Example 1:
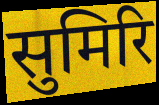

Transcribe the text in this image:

सुमिरि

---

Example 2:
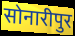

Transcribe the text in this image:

सोनारीपुर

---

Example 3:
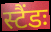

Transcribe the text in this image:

स्टैंडः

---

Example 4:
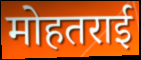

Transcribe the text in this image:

मोहतराई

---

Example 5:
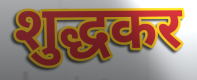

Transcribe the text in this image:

शुद्धकर